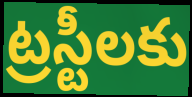
ట్రస్టీలకు